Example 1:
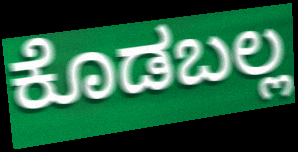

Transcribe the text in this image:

ಕೊಡಬಲ್ಲ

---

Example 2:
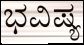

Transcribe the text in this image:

ಭವಿಷ್ಯ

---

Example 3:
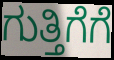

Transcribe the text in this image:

ಗುತ್ತಿಗೆಗೆ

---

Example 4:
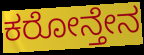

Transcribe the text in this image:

ಕರೋನ್ತೇನ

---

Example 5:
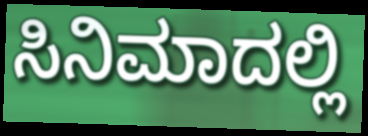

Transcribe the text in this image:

ಸಿನಿಮಾದಲ್ಲಿ